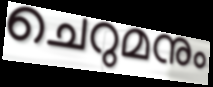
ചെറുമനും